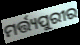
ମର୍ତ୍ତ୍ୟପୁରୀର